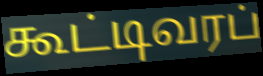
கூட்டிவரப்